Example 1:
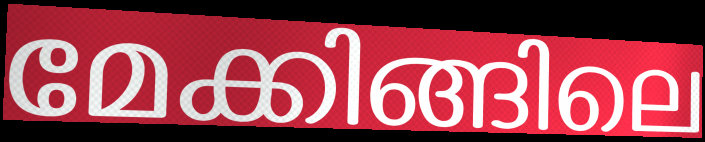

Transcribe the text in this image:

മേക്കിങ്ങിലെ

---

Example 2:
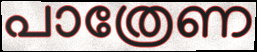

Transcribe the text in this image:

പാത്രേണ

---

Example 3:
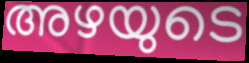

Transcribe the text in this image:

അഴയുടെ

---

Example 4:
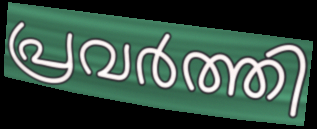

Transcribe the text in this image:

പ്രവർത്തി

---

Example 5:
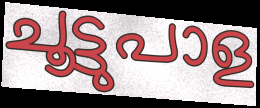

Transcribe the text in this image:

ചൂട്ടുപാള